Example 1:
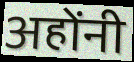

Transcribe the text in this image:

अहोंनी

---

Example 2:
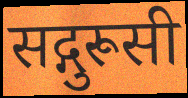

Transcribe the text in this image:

सद्गुरूसी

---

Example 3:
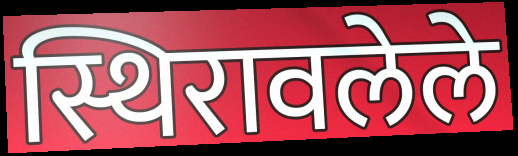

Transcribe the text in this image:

स्थिरावलेले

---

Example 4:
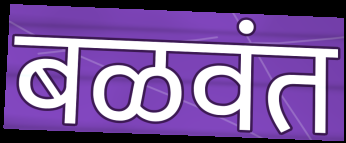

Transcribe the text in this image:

बळवंत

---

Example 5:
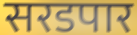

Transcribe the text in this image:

सरडपार